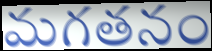
మగతనం